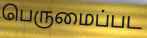
பெருமைப்பட